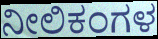
ನೀಲಿಕಂಗಳ